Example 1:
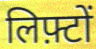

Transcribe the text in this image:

लिफ़्टों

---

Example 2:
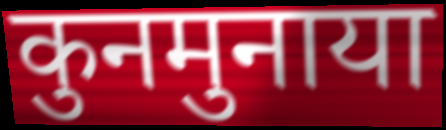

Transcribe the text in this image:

कुनमुनाया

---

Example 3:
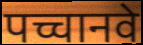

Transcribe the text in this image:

पच्चानवे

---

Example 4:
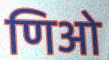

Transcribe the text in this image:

णिओ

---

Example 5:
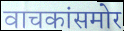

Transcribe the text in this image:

वाचकांसमोर